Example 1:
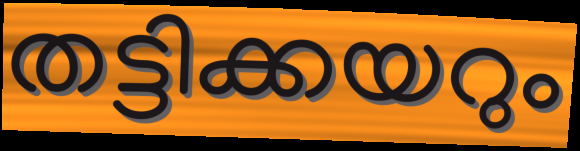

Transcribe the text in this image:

തട്ടിക്കയറും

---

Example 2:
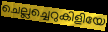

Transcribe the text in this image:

ചെല്ലച്ചെറുകിളിയേ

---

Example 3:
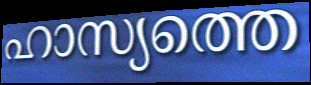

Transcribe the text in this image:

ഹാസ്യത്തെ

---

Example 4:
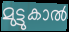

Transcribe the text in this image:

മുട്ടുകാൽ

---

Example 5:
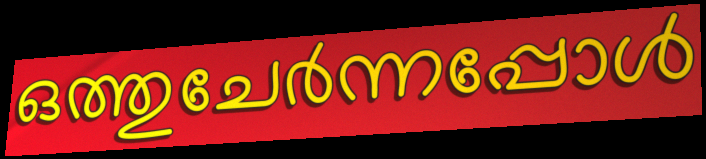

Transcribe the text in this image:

ഒത്തുചേർന്നപ്പോൾ